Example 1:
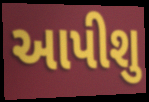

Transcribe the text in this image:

આપીશુ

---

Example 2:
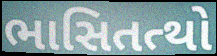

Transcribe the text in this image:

ભાસિતત્થો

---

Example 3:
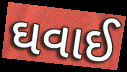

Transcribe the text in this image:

ઘવાઈ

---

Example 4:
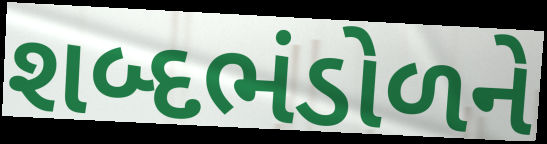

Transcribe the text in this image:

શબ્દભંડોળને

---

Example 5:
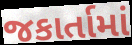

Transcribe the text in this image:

જકાર્તામાં